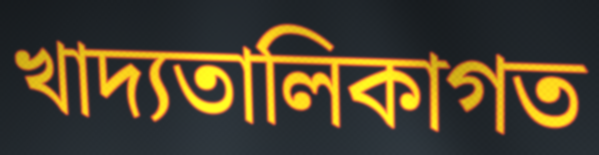
খাদ্যতালিকাগত